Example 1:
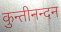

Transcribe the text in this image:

कुन्तीनन्दन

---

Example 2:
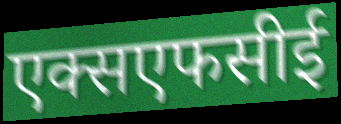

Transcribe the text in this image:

एक्सएफसीई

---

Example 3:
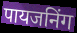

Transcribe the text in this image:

पायजनिंग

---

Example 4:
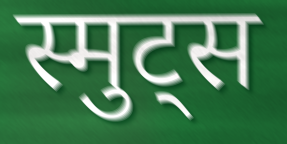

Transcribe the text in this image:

स्मुट्स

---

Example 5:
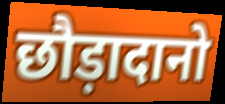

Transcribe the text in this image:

छौड़ादानो